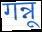
गन्नू